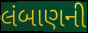
લંબાણની